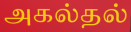
அகல்தல்